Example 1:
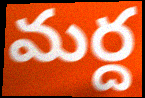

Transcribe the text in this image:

మర్ద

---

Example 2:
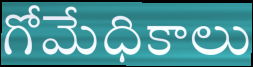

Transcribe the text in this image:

గోమేధికాలు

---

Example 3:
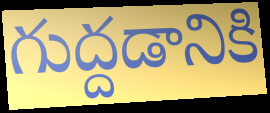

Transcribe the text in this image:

గుద్దడానికి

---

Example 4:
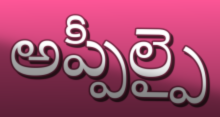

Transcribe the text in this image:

అప్పీల్పై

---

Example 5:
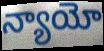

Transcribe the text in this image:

న్యాయో